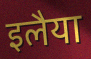
इलैया